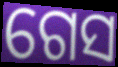
ଗେସ